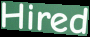
Hired